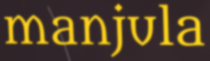
manjula